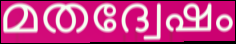
മതദ്വേഷം